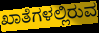
ಖಾತೆಗಳಲ್ಲಿರುವ